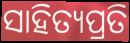
ସାହିତ୍ୟପ୍ରତି